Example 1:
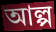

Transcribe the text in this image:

আল্প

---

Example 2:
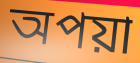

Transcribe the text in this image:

অপয়া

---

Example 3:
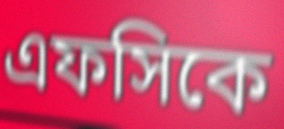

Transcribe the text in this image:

এফসিকে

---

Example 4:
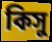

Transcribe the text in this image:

কিসু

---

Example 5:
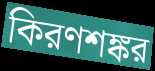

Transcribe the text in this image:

কিরণশঙ্কর